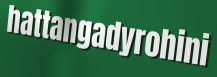
hattangadyrohini